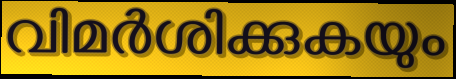
വിമർശിക്കുകയും